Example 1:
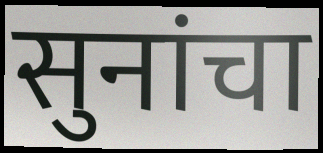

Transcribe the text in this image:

सुनांचा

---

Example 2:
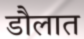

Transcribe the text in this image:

डौलात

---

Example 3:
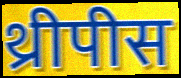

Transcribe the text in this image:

थ्रीपीस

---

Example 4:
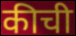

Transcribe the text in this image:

कीची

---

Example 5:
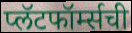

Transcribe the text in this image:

प्लॅटफॉर्म्सची